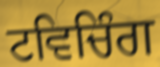
ਟਵਿਚਿੰਗ